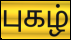
புகழ்